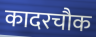
कादरचौक